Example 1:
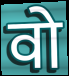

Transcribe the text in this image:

वो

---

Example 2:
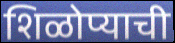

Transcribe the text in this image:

शिळोप्याची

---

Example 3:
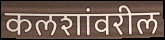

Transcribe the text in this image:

कलशांवरील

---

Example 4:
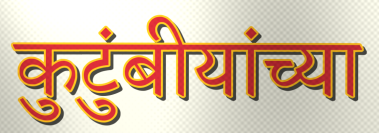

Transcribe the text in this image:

कुटुंबीयांच्या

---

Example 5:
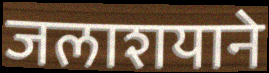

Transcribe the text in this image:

जलाशयाने